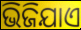
ଭିଜିଯାଏ